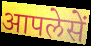
आपलेसें